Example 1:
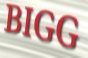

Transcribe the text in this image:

BIGG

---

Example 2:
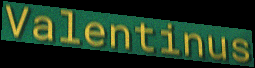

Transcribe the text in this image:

Valentinus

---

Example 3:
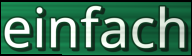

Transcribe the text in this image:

einfach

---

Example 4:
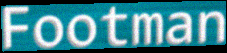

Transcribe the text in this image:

Footman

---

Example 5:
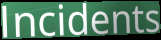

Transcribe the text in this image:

Incidents